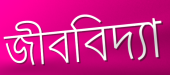
জীববিদ্যা